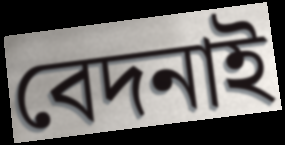
বেদনাই